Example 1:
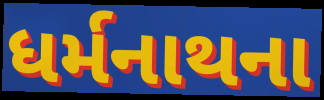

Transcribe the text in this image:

ધર્મનાથના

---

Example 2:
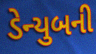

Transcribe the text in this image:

ડેન્યુબની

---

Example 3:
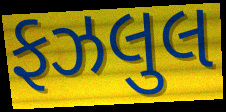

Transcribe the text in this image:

ફઝલુલ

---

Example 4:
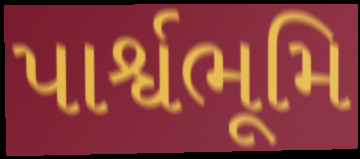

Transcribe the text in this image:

પાર્શ્વભૂમિ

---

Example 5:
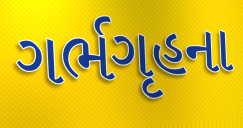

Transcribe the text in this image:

ગર્ભગૃહના